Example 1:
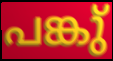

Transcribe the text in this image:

പങ്കു്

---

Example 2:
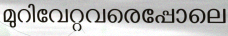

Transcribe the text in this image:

മുറിവേറ്റവരെപ്പോലെ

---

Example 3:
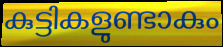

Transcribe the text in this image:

കുട്ടികളുണ്ടാകും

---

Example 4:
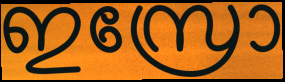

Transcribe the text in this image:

ഇസ്രോ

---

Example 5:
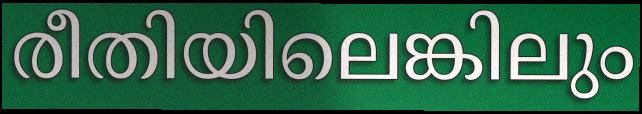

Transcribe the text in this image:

രീതിയിലെങ്കിലും